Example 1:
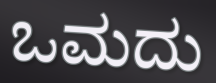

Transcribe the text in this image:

ಒಮದು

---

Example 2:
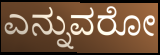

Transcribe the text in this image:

ಎನ್ನುವರೋ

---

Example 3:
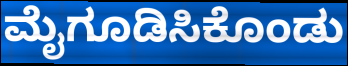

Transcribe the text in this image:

ಮೈಗೂಡಿಸಿಕೊಂಡು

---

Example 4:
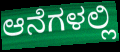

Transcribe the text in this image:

ಆನೆಗಳಲ್ಲಿ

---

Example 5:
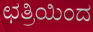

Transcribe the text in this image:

ಛತ್ರಿಯಿಂದ